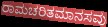
ರಾಮಚರಿತಮಾನಸವು